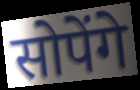
सोपेंगे